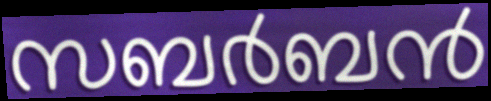
സബർബൻ